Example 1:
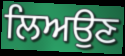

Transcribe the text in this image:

ਲਿਅਉਣ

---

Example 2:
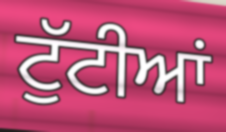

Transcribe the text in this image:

ਟੁੱਟੀਆਂ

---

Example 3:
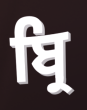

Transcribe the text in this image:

ਬ੍ਰਿ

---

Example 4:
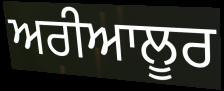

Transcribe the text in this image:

ਅਰੀਆਲੂਰ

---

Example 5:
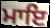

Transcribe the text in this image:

ਮਾਇ